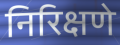
निरिक्षणे